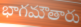
భాగమౌతారు